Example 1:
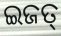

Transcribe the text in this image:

ଇଜତ୍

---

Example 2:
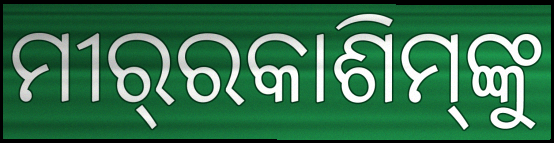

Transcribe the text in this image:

ମୀର୍‌ରକାଶିମ୍‌ଙ୍କୁ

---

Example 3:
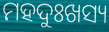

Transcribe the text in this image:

ମହଦୁଃଖସ୍ୟ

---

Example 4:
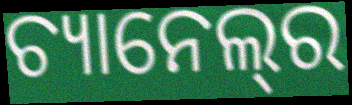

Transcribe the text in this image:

ଚ୍ୟାନେଲ୍‌ର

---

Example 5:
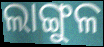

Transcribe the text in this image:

ଲାଙ୍ଗୁଳ